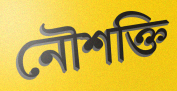
নৌশক্তি